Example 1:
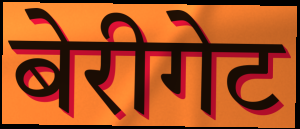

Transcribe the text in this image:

बेरीगेट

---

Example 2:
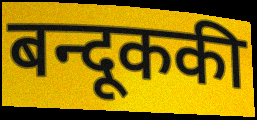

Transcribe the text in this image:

बन्दूककी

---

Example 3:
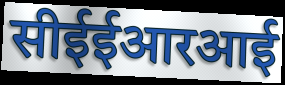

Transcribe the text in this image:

सीईईआरआई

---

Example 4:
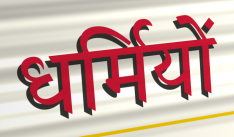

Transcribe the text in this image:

धर्मियों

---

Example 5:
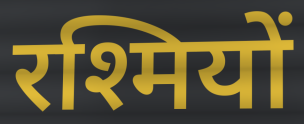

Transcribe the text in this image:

रश्मियों